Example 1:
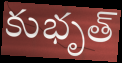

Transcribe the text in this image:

కుభృత్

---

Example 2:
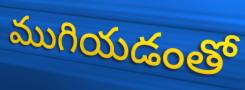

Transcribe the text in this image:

ముగియడంతో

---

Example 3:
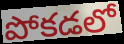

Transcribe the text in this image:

పోకడలో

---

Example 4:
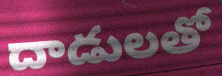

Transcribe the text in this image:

దాడులతో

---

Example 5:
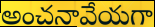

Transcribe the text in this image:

అంచనావేయగా